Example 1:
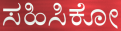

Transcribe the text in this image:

ಸಹಿಸಿಕೋ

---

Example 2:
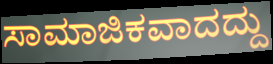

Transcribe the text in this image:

ಸಾಮಾಜಿಕವಾದದ್ದು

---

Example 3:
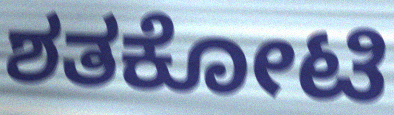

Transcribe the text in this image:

ಶತಕೋಟಿ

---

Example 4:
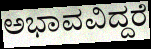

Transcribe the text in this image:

ಅಭಾವವಿದ್ದರೆ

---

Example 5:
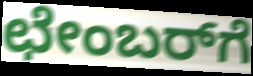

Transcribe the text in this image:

ಛೇಂಬರ್‌ಗೆ